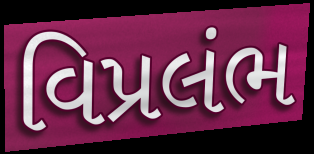
વિપ્રલંભ